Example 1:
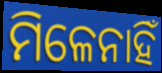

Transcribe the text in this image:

ମିଳେନାହିଁ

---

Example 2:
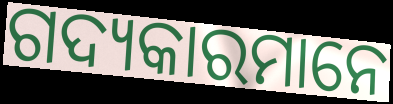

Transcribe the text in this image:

ଗଦ୍ୟକାରମାନେ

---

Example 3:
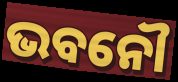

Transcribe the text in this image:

ଭବନୌ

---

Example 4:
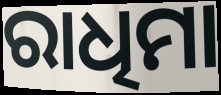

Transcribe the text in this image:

ରାଧିମା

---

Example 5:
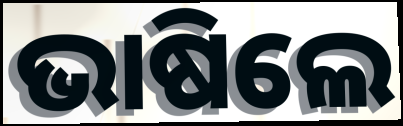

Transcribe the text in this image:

ଭାଷିଲେ